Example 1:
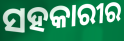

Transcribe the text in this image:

ସହକାରୀର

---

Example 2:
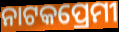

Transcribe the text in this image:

ନାଟକପ୍ରେମୀ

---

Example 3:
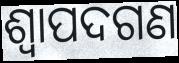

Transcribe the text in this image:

ଶ୍ୱାପଦଗଣ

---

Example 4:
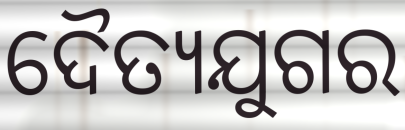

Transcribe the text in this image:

ଦୈତ୍ୟଯୁଗର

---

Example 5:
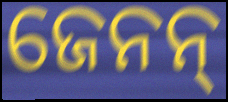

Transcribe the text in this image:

ଜେନନ୍